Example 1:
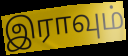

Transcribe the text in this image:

இராவும்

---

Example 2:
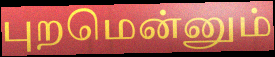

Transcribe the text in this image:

புறமென்னும்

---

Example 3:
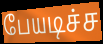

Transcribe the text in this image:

பேயடிச்ச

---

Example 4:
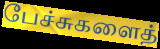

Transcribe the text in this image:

பேச்சுகளைத்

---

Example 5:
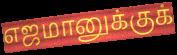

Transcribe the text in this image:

எஜமானுக்குக்